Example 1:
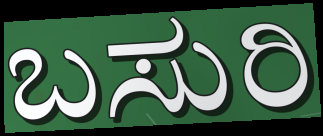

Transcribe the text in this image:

ಬಸುರಿ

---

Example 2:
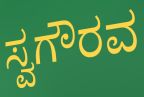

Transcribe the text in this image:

ಸ್ವಗೌರವ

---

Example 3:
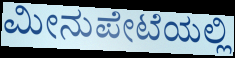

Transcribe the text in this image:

ಮೀನುಪೇಟೆಯಲ್ಲಿ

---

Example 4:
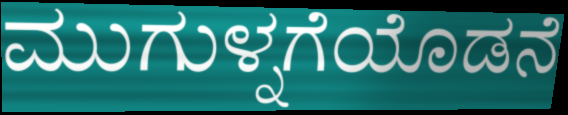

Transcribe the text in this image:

ಮುಗುಳ್ನಗೆಯೊಡನೆ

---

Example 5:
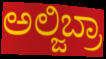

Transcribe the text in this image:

ಅಲ್ಜಿಬ್ರಾ